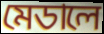
মেডালে